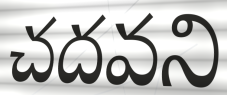
చదవని